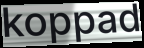
koppad